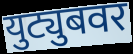
युट्युबवर